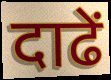
दाढें